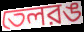
তেলরঙ